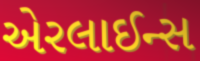
એરલાઈન્સ